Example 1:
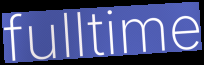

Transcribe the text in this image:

fulltime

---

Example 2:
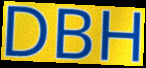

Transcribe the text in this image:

DBH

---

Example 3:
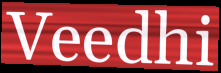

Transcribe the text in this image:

Veedhi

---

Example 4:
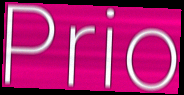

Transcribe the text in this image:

Prio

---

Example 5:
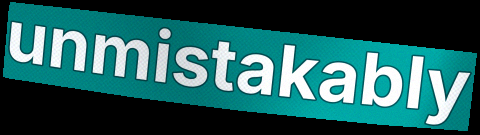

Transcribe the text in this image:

unmistakably